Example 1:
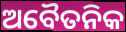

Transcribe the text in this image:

ଅବୈତନିକ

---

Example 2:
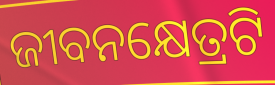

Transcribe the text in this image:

ଜୀବନକ୍ଷେତ୍ରଟି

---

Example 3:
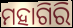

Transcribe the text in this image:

ମହାଗିରି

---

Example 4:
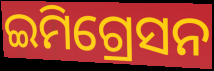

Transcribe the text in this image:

ଇମିଗ୍ରେସନ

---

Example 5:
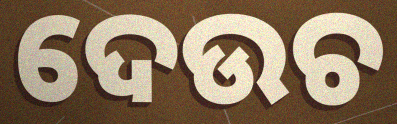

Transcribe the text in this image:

ଦେଉଚ